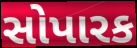
સોપારક